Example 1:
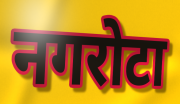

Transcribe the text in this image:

नगरोटा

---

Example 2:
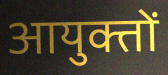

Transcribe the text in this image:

आयुक्तों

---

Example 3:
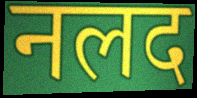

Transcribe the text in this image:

नलद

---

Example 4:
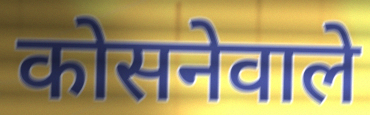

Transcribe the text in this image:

कोसनेवाले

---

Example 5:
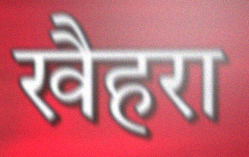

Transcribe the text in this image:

खैहरा